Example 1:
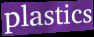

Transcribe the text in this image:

plastics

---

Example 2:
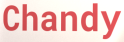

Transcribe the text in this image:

Chandy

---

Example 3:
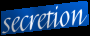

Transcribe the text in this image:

secretion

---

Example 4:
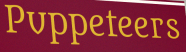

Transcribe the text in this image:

Puppeteers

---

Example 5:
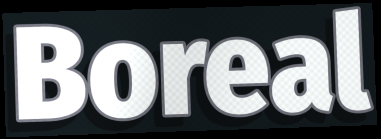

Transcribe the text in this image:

Boreal